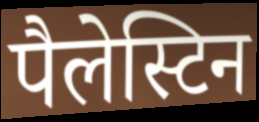
पैलेस्टिन